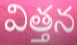
విత్తన